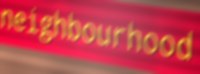
neighbourhood